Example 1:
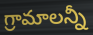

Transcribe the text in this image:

గ్రామాలన్నీ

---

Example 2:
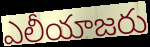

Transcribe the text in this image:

ఎలీయాజరు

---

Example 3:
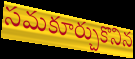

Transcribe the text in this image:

సమకూర్చుకొనిన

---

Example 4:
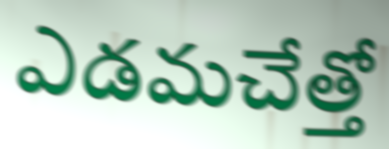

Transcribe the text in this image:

ఎడమచేత్తో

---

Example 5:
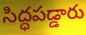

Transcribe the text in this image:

సిద్ధపడ్డారు